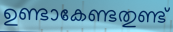
ഉണ്ടാകേണ്ടതുണ്ട്